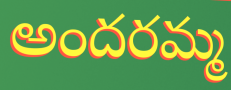
అందరమ్మ